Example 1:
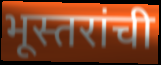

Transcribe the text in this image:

भूस्तरांची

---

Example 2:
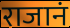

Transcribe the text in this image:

राजानं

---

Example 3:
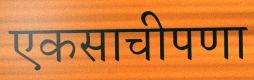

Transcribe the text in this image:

एकसाचीपणा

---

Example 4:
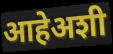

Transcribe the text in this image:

आहेअशी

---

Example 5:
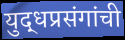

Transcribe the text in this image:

युद्धप्रसंगांची